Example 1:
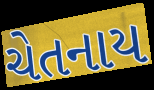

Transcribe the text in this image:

ચેતનાય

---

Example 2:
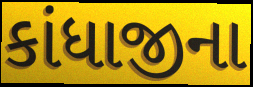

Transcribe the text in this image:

કાંધાજીના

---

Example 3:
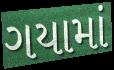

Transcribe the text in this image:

ગયામાં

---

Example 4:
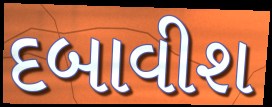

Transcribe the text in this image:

દબાવીશ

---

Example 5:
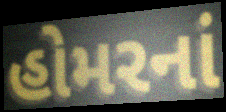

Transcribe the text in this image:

હોમરનાં